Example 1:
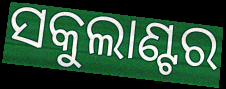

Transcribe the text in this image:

ସକୁଲାଣ୍ଟର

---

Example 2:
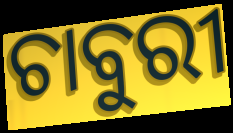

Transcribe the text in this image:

ଚାବୁରୀ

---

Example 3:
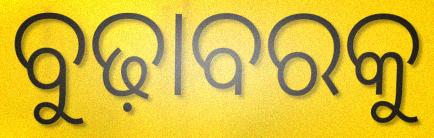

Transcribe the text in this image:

ବୁଢ଼ାବରକୁ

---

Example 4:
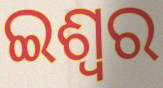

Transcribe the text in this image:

ଇଶ୍ବର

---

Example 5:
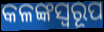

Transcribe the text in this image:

କଳଙ୍କସ୍ୱରୂପ